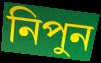
নিপুন